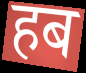
हब